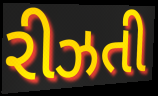
રીઝતી